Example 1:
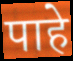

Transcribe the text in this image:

पाहे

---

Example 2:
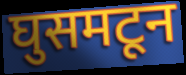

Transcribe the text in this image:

घुसमटून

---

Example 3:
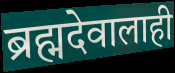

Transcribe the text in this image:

ब्रह्मदेवालाही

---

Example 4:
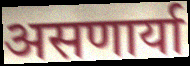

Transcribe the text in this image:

असणार्या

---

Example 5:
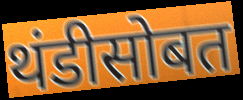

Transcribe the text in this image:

थंडीसोबत